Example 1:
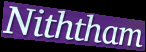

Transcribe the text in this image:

Niththam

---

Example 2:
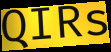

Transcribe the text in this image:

QIRs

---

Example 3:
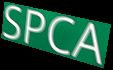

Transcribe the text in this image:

SPCA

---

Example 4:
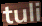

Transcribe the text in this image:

tuli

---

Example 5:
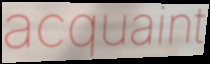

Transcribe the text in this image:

acquaint